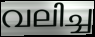
വലിച്ച